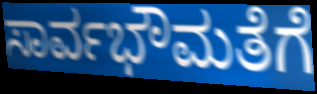
ಸಾರ್ವಭೌಮತೆಗೆ